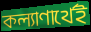
কল্যাণার্থেই